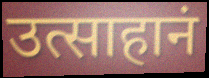
उत्साहानं